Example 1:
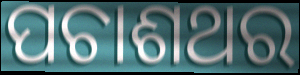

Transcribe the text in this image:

ପଚାଶଥର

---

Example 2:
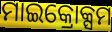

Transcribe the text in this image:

ମାଇକ୍ରୋକ୍ସମ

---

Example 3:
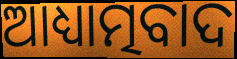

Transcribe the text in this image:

ଆଧ୍ୟାତ୍ମବାଦ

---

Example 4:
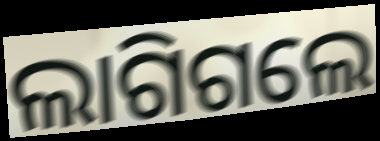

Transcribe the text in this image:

ଲାଗିଗଲେ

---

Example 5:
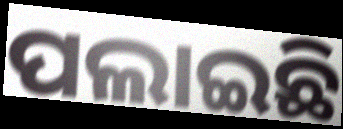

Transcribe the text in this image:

ପଲାଇଛି